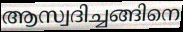
ആസ്വദിച്ചങ്ങിനെ